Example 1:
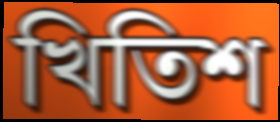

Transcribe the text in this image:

খিতিশ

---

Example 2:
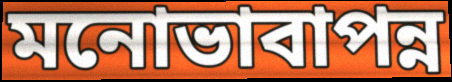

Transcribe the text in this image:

মনোভাবাপন্ন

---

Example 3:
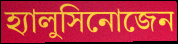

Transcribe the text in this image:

হ্যালুসিনোজেন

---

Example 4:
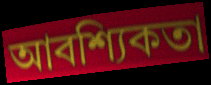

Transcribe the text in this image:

আবশ্যিকতা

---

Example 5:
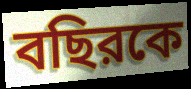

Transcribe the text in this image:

বছিরকে